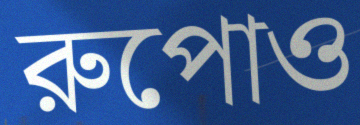
রুপোও